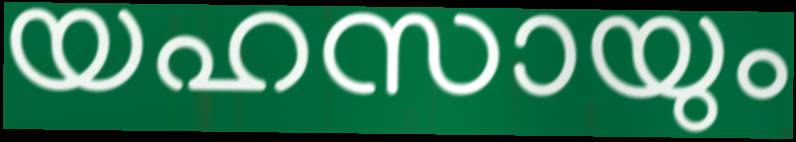
യഹസായും